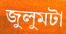
জুলুমটা